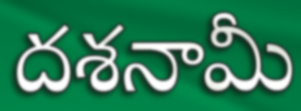
దశనామీ